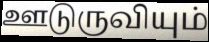
ஊடுருவியும்